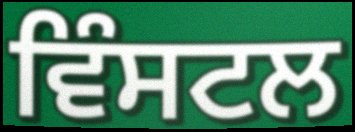
ਵਿੰਸਟਲ